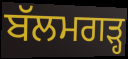
ਬੱਲਮਗੜ੍ਹ